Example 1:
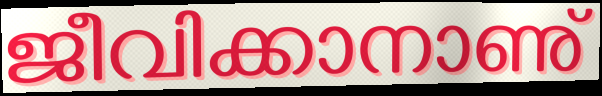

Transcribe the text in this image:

ജീവിക്കാനാണു്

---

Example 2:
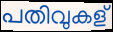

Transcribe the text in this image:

പതിവുകള്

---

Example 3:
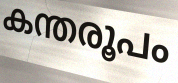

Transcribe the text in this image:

കന്തരൂപം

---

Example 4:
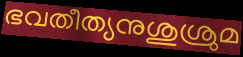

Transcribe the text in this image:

ഭവതീത്യനുശുശ്രുമ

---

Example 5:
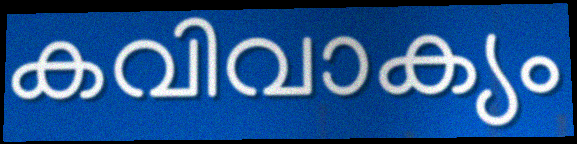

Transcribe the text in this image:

കവിവാക്യം